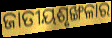
ଜାତୀୟଶୃଙ୍ଖଳାର